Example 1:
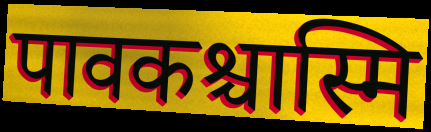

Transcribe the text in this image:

पावकश्चास्मि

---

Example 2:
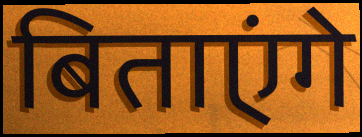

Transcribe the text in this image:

बिताएंगे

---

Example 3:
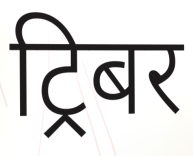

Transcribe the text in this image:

ट्रिबर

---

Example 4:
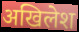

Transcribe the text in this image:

अखिलेश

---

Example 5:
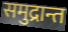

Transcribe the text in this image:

समुद्रान्त